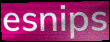
esnips